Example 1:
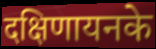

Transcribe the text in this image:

दक्षिणायनके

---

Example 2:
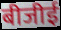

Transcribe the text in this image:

बीजीई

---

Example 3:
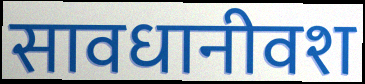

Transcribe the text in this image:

सावधानीवश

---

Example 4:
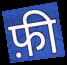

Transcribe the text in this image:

फ़ी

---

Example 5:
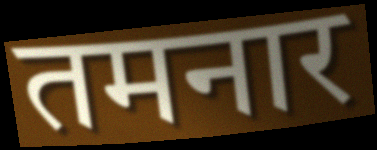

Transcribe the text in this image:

तमनार